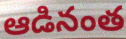
ఆడినంత